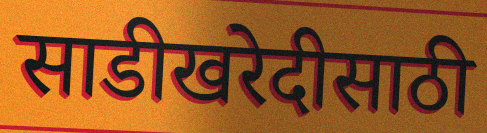
साडीखरेदीसाठी